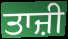
ਤਾਜ਼ੀ